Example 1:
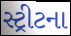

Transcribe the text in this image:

સ્ટ્રીટના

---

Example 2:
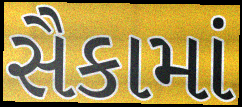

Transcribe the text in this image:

સૈકામાં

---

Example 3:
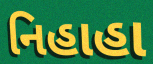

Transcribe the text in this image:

નિહાહા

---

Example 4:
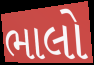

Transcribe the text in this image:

ભાલો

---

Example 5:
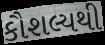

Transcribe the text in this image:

કૌશલ્યથી